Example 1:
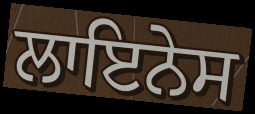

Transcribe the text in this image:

ਲਾਇਨੇਸ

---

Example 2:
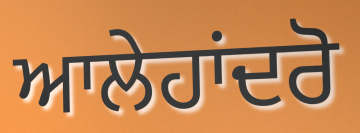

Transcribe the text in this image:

ਆਲੇਹਾਂਦਰੋ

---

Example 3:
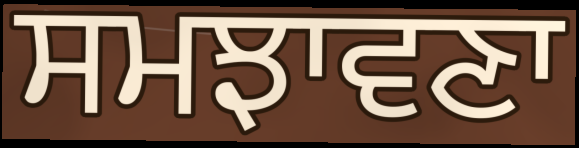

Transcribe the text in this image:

ਸਮਝਾਵਣਾ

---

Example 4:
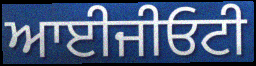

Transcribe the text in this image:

ਆਈਜੀਓਟੀ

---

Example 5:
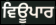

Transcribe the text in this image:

ਵਿਊਪਾਰ